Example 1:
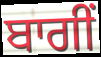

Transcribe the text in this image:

ਬਾਗੀਂ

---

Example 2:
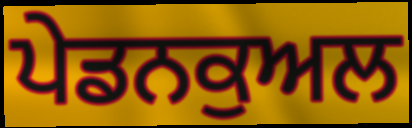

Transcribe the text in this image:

ਪੇਡਨਕੁਅਲ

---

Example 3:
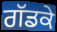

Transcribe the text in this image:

ਗੱਡਕੇ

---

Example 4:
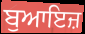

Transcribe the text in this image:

ਬੁਆਇਜ਼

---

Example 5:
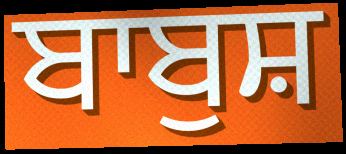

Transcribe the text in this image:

ਬਾਬੁਸ਼